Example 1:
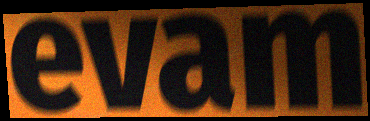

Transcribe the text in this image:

evam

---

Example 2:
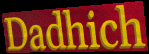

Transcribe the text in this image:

Dadhich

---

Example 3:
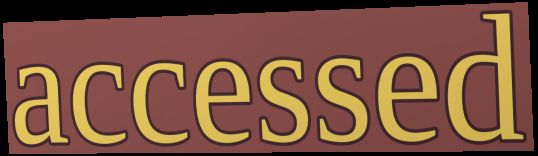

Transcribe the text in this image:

accessed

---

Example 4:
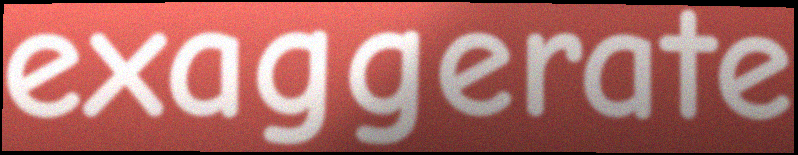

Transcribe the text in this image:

exaggerate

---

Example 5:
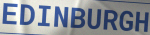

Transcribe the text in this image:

EDINBURGH